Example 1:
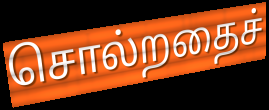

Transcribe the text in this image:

சொல்றதைச்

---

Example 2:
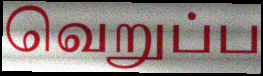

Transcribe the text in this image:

வெறுப்ப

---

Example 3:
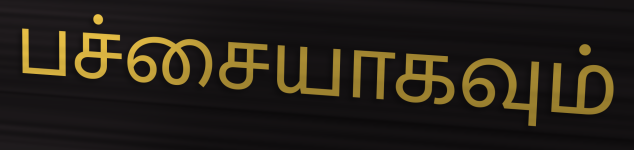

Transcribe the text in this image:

பச்சையாகவும்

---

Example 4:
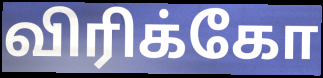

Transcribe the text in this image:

விரிக்கோ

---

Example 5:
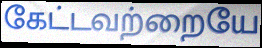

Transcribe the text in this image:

கேட்டவற்றையே